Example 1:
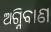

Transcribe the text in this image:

ଅଗ୍ନିବାଣ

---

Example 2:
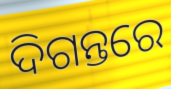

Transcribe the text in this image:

ଦିଗନ୍ତରେ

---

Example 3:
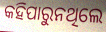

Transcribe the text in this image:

କହିପାରୁନଥିଲେ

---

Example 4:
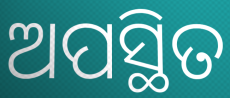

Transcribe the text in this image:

ଅପସ୍ଥିତ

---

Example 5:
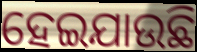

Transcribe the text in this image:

ହେଇଯାଉଛି